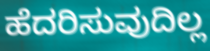
ಹೆದರಿಸುವುದಿಲ್ಲ